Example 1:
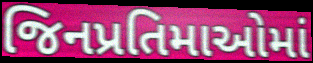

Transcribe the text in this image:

જિનપ્રતિમાઓમાં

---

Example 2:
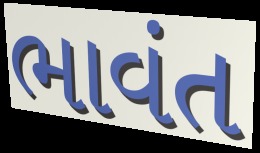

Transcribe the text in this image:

ભાવંત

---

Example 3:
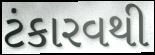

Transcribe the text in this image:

ટંકારવથી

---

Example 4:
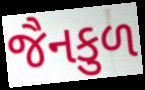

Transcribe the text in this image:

જૈનકુળ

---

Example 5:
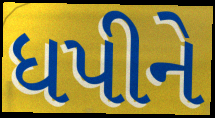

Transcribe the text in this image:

ધપીને